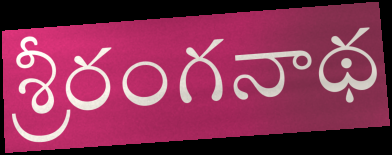
శ్రీరంగనాథ